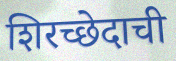
शिरच्छेदाची